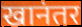
खानंतर